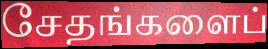
சேதங்களைப்